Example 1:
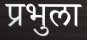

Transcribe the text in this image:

प्रभुला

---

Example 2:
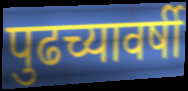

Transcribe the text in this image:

पुढच्यावर्षी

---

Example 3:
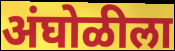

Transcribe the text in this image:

अंघोळीला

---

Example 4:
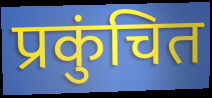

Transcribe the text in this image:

प्रकुंचित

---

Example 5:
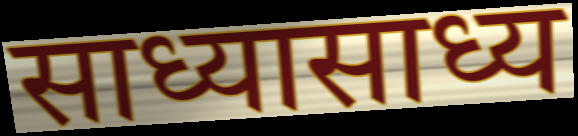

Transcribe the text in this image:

साध्यासाध्य